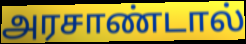
அரசாண்டால்